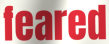
feared